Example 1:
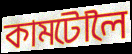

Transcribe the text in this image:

কামটোলৈ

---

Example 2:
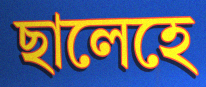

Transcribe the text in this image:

ছালেহে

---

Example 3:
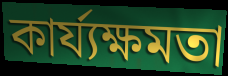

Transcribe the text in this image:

কাৰ্য্যক্ষমতা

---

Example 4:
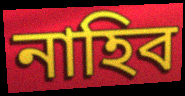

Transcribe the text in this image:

নাহিব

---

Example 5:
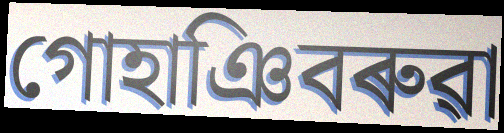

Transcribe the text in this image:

গোহাঞিবৰুৱা